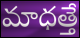
మాధత్తే